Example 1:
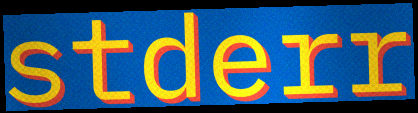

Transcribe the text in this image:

stderr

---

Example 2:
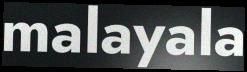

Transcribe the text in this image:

malayala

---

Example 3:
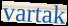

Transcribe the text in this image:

vartak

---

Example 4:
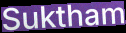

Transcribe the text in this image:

Suktham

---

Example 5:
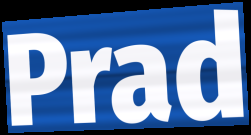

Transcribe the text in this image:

Prad